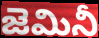
జెమినీ